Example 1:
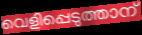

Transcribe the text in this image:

വെളിപ്പെടുത്താന്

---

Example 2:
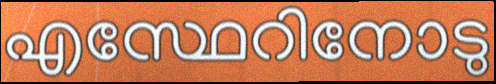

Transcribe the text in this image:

എസ്ഥേറിനോടു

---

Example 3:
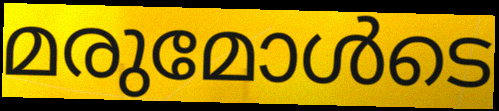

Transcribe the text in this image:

മരുമോൾടെ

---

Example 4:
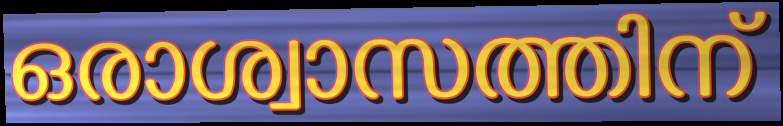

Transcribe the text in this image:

ഒരാശ്വാസത്തിന്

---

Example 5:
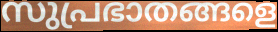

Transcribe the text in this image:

സുപ്രഭാതങ്ങളെ